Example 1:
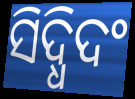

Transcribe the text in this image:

ସିଦ୍ଧିଦଂ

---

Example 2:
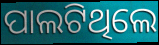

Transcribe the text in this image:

ପାଲଟିଥିଲେ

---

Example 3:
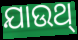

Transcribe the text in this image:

ଯାଉଥ୍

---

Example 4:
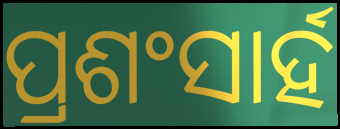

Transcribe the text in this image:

ପ୍ରଶଂସାର୍ହ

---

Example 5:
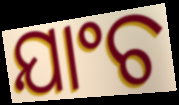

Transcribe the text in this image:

ଯାଂଚ